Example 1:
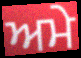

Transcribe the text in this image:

ਅਮੇ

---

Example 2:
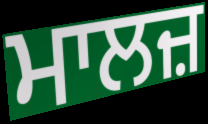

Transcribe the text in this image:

ਮਾਲਜ਼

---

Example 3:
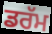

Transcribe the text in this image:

ਡਰੱਮ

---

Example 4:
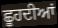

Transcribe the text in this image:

ਛੂਹਦੀਆਂ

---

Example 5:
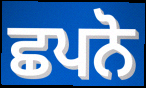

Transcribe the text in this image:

ਛਪਨੋ